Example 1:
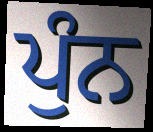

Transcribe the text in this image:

ਪੁੰਨ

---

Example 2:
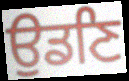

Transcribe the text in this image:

ਉਡਣਿ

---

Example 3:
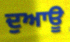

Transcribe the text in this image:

ਦੁਆਊ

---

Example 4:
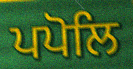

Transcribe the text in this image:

ਪਪੋਲਿ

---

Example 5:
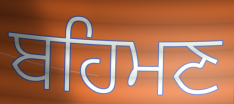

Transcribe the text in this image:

ਬਹਿਮਣ